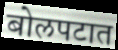
बोलपटात